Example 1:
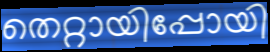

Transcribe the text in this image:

തെറ്റായിപ്പോയി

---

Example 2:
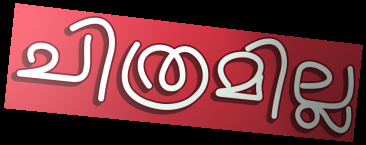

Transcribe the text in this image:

ചിത്രമില്ല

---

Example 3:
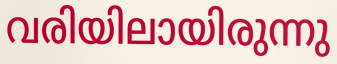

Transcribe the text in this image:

വരിയിലായിരുന്നു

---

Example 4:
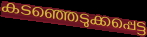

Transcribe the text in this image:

കടഞ്ഞെടുക്കപ്പെട്ട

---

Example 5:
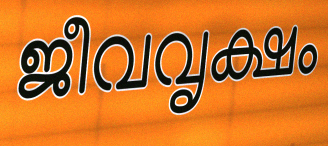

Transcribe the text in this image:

ജീവവൃക്ഷം